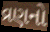
વ્રણનો